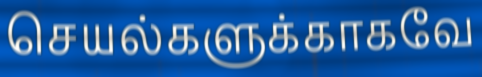
செயல்களுக்காகவே